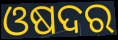
ଓଷଦର